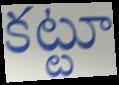
కట్టూ